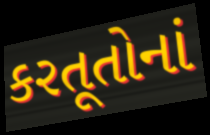
કરતૂતોનાં